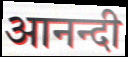
आनन्दी